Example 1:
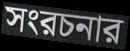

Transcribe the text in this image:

সংরচনার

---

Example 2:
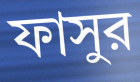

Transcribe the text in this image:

ফাসুর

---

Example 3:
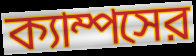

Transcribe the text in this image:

ক্যাম্পসের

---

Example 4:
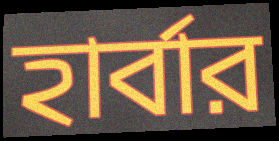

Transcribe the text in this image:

হার্বার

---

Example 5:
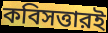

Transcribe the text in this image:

কবিসত্তারই